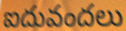
ఐదువందలు